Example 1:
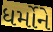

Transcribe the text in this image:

ધર્મોને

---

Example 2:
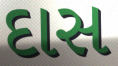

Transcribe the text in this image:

દાસ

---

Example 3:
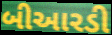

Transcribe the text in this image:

બીઆરડી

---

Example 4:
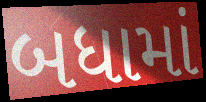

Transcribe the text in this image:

બધામાં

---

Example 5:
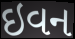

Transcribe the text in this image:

ઇવન